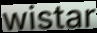
wistar